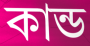
কান্ড